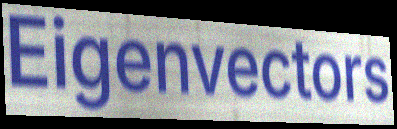
Eigenvectors